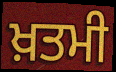
ਖ਼ਤਮੀ